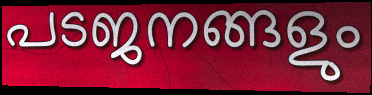
പടജനങ്ങളും